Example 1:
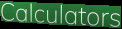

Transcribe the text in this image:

Calculators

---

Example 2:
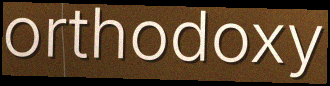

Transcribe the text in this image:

orthodoxy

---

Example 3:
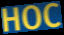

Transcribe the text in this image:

HOC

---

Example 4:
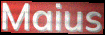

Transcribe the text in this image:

Maius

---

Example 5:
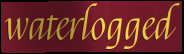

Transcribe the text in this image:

waterlogged